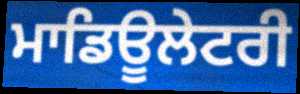
ਮਾਡਿਊਲੇਟਰੀ